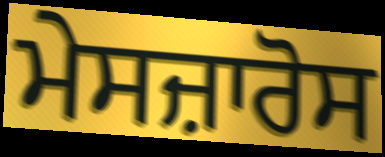
ਮੇਸਜ਼ਾਰੋਸ